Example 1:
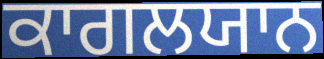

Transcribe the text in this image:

ਕਾਗਲਯਾਨ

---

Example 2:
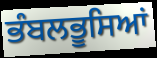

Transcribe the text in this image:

ਭੰਬਲਭੂਸਿਆਂ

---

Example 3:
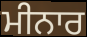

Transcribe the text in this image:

ਮੀਨਾਰ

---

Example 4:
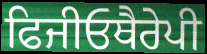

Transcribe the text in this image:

ਫਿਜੀਓਥੈਰੇਪੀ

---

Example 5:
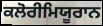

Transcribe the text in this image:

ਕਲੋਰੀਮਿਯੂਰਾਨ